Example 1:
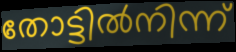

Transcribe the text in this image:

തോട്ടിൽനിന്ന്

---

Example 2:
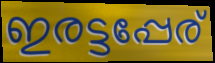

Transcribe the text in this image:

ഇരട്ടപ്പേര്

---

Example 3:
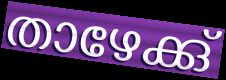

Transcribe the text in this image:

താഴേക്കു്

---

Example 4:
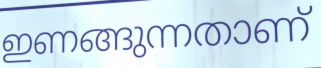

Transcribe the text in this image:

ഇണങ്ങുന്നതാണ്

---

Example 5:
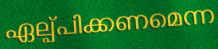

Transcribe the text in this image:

ഏല്പ്പിക്കണമെന്ന